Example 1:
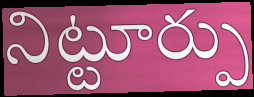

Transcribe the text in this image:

నిట్టూర్పు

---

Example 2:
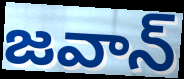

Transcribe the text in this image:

జవాన్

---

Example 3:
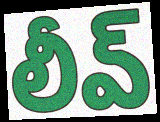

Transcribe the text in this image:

లీవ్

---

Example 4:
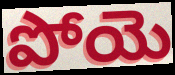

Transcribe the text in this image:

పోయె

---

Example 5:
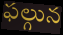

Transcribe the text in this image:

ఫల్గున